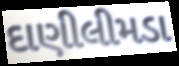
દાણીલીમડા